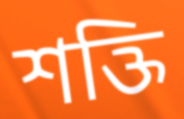
শক্তি